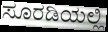
ಸೂರಡಿಯಲ್ಲಿ